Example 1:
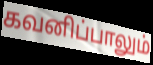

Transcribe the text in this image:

கவனிப்பாலும்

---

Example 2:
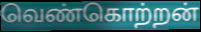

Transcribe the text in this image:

வெண்கொற்றன்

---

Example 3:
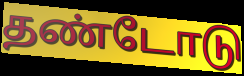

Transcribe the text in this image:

தண்டோடு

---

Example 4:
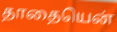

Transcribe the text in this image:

தாதையென்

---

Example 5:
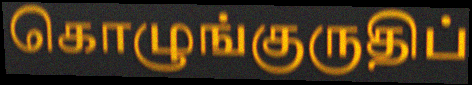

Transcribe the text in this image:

கொழுங்குருதிப்